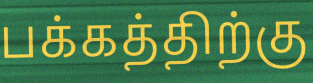
பக்கத்திற்கு